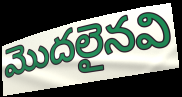
మొదలైనవి